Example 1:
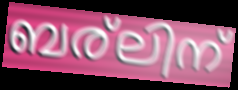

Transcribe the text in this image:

ബര്ലിന്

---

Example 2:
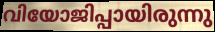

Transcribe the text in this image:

വിയോജിപ്പായിരുന്നു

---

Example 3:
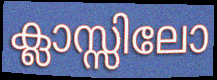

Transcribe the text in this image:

ക്ലാസ്സിലോ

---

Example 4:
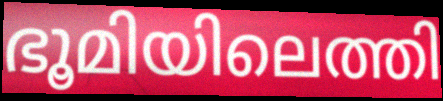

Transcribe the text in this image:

ഭൂമിയിലെത്തി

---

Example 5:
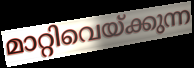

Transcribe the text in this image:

മാറ്റിവെയ്ക്കുന്ന